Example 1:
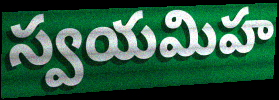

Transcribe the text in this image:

స్వయమిహ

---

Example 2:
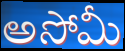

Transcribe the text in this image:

అసోమీ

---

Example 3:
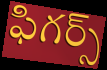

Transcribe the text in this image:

ఫిగర్స్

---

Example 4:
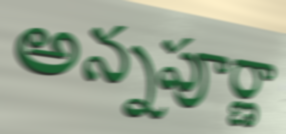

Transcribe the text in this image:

అన్నపూర్ణా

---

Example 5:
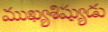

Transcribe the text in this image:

ముఖ్యశిష్యుడు